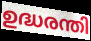
ഉദ്ധരന്തി